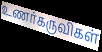
உணர்கருவிகள்